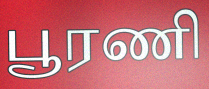
பூரணி